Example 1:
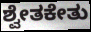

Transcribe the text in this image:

ಶ್ವೇತಕೇತು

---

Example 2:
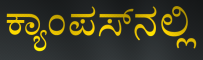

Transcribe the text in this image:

ಕ್ಯಾಂಪಸ್‌ನಲ್ಲಿ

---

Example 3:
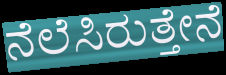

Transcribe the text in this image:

ನೆಲೆಸಿರುತ್ತೇನೆ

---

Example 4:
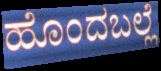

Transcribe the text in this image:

ಹೊಂದಬಲ್ಲೆ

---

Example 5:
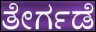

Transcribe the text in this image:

ತೇರ್ಗಡೆ